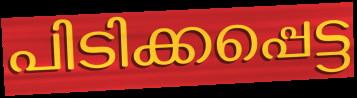
പിടിക്കപ്പെട്ട